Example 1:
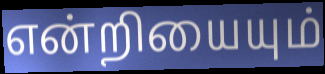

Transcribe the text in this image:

என்றியையும்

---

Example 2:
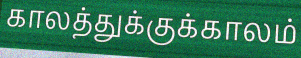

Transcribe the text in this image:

காலத்துக்குக்காலம்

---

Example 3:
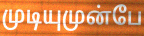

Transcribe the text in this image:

முடியுமுன்பே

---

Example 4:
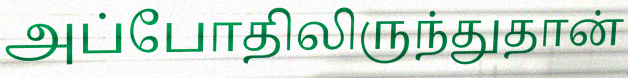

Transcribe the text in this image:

அப்போதிலிருந்துதான்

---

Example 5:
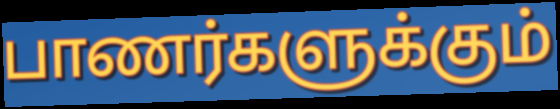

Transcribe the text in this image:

பாணர்களுக்கும்